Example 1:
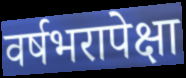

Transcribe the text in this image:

वर्षभरापेक्षा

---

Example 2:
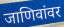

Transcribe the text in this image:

जाणिवांवर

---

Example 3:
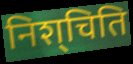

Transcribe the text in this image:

निश्चिति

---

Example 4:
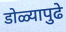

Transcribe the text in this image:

डोळ्यापुढे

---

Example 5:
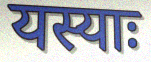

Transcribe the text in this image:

यस्याः